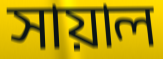
সায়াল